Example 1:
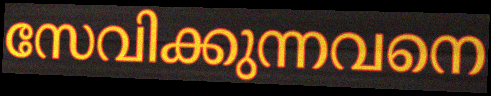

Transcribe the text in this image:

സേവിക്കുന്നവനെ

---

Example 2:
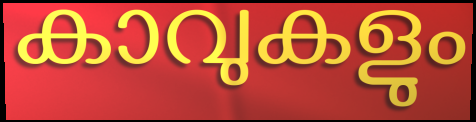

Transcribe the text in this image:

കാവുകളും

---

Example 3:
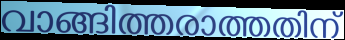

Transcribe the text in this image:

വാങ്ങിത്തരാത്തതിന്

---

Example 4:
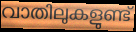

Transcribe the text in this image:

വാതിലുകളുണ്ട്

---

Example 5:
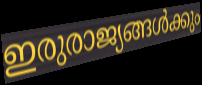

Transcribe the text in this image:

ഇരുരാജ്യങ്ങൾക്കും